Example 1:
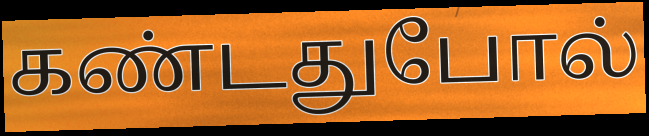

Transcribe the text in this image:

கண்டதுபோல்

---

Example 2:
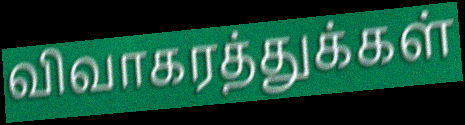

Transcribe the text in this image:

விவாகரத்துக்கள்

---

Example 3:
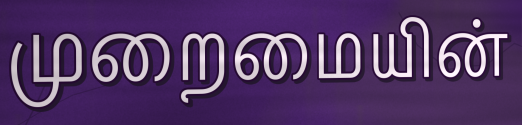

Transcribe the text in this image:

முறைமையின்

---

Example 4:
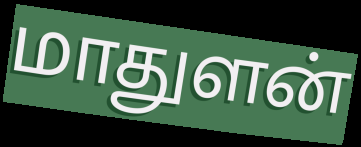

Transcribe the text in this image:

மாதுளன்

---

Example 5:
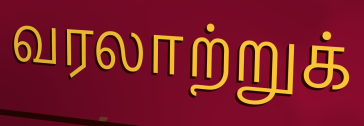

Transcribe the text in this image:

வரலாற்றுக்